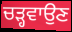
ਚੜ੍ਹਵਾਉਣ